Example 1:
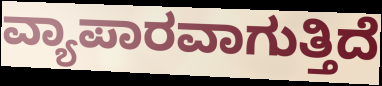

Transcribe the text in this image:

ವ್ಯಾಪಾರವಾಗುತ್ತಿದೆ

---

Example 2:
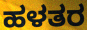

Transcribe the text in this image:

ಹಳತರ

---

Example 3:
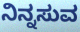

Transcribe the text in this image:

ನಿನ್ನಸುವ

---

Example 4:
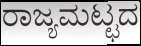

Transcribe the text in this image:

ರಾಜ್ಯಮಟ್ಟದ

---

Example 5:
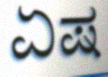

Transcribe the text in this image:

ಏಷ